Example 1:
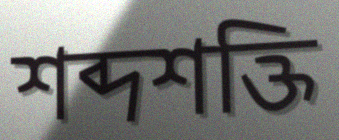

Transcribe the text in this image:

শব্দশক্তি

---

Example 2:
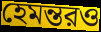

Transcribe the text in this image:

হেমন্তরও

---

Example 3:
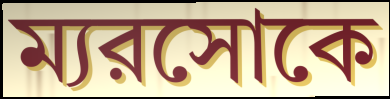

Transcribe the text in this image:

ম্যরসোকে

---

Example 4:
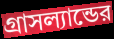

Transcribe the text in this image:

গ্রাসল্যান্ডের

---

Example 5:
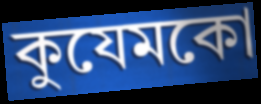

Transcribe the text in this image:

কুযেমকো